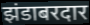
झंडाबरदार